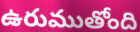
ఉరుముతోంది